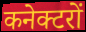
कनेक्टरों